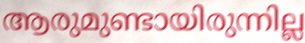
ആരുമുണ്ടായിരുന്നില്ല